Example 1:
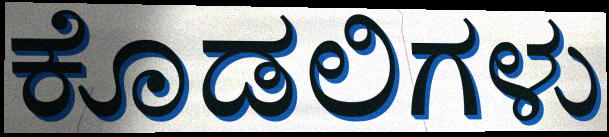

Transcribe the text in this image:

ಕೊಡಲಿಗಳು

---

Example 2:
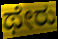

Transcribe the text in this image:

ಥೇರು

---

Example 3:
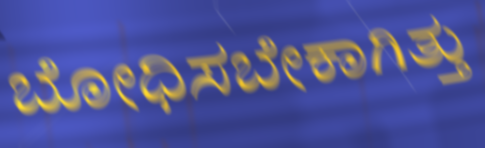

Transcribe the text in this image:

ಬೋಧಿಸಬೇಕಾಗಿತ್ತು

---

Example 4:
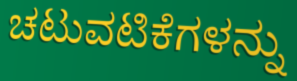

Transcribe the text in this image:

ಚಟುವಟಿಕೆಗಳನ್ನು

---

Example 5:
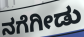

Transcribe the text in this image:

ನಗೆಗೀಡು